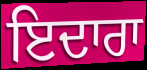
ਇਦਾਰਾ